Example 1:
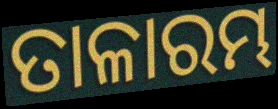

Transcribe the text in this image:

ତାଳାରମ୍ଭ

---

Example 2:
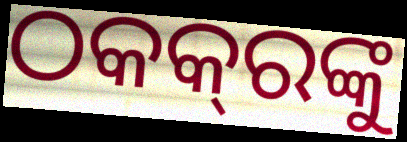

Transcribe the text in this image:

ଠକକ୍‌ରଙ୍କୁ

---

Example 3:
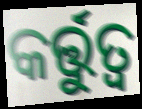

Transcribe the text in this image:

କର୍ତ୍ତୁତ୍ୱ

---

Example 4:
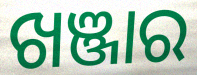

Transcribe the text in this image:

ଖଞ୍ଜାର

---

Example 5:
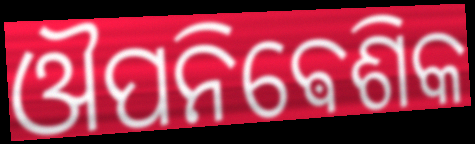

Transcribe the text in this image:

ଔପନିଵେଶିକ